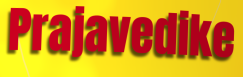
Prajavedike